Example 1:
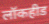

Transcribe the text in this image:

लॉकहीड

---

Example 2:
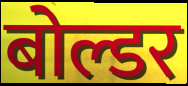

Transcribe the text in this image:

बोल्डर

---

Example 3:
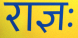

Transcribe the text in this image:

राज्ञः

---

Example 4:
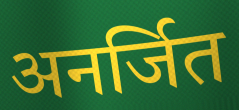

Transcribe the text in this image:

अनर्जित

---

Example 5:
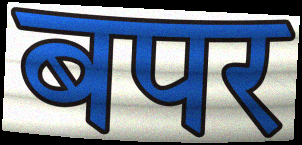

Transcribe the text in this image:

बपर